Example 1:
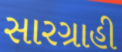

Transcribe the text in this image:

સારગ્રાહી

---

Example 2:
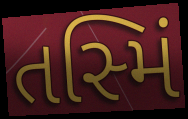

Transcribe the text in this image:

તસ્મિં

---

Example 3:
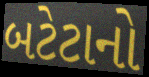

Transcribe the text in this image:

બટેટાનો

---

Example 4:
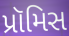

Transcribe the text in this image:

પ્રૉમિસ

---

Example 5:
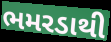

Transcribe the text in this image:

ભમરડાથી